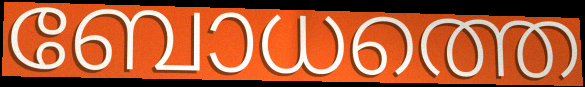
ബോധത്തെ